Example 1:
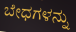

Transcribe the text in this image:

ಬೇಧಗಳನ್ನು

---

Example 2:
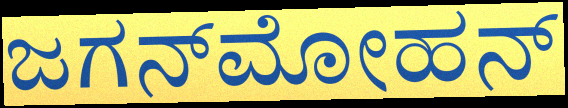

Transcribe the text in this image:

ಜಗನ್‌ಮೋಹನ್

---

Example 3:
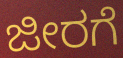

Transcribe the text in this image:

ಜೀರಗೆ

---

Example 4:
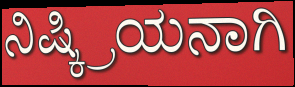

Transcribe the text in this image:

ನಿಷ್ಕ್ರಿಯನಾಗಿ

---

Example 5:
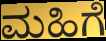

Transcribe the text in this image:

ಮಹಿಗೆ